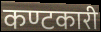
कण्टकारी